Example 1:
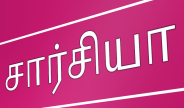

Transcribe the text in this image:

சார்சியா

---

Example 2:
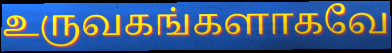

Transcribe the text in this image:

உருவகங்களாகவே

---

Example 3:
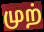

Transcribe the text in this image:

முற்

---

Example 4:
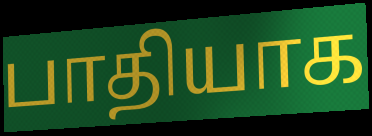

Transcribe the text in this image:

பாதியாக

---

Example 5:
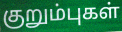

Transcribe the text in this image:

குறும்புகள்